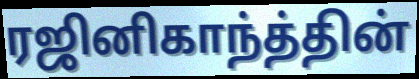
ரஜினிகாந்த்தின்